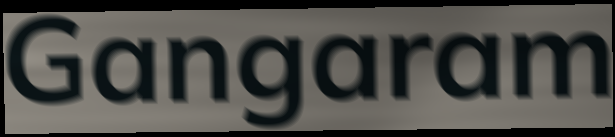
Gangaram